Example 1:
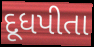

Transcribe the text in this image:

દૂધપીતા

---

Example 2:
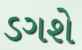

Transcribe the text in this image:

ડગશે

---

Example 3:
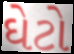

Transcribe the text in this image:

ઘેટો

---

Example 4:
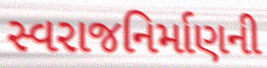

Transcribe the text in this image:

સ્વરાજનિર્માણની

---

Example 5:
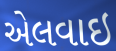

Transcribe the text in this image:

એલવાઇ